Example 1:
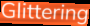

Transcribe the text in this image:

Glittering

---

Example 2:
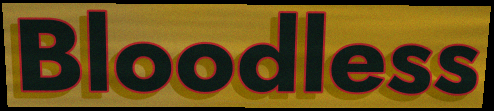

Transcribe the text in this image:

Bloodless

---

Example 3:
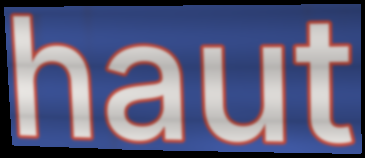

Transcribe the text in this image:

haut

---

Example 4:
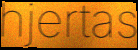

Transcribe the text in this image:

hjertas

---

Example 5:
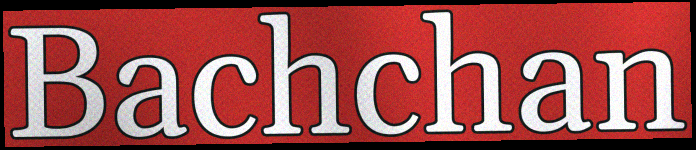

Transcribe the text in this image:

Bachchan